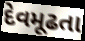
દેવમૂઢતા